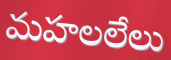
మహలలేలు